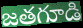
జతగూడి